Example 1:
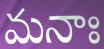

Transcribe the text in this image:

మనాః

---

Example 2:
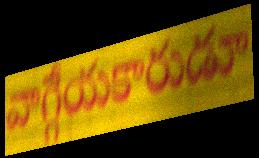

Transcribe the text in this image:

వాగ్గేయకారుడూ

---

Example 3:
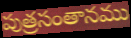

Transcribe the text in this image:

పుత్రసంతానము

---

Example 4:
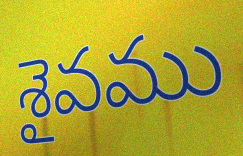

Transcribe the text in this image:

శైవము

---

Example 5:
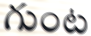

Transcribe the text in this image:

గుంట